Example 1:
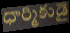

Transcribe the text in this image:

ధార్మికుడై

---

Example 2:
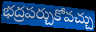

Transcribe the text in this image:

భద్రపర్చుకోవచ్చు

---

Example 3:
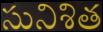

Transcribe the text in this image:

సునిశిత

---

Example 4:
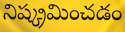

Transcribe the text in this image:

నిష్క్రమించడం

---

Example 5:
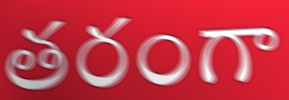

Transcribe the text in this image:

తరంగా